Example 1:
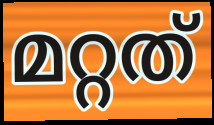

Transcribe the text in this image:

മറ്റത്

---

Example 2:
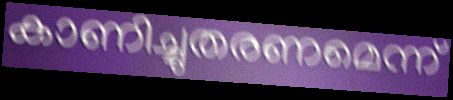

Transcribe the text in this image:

കാണിച്ചുതരണമെന്ന്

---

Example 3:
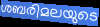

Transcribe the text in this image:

ശബരിമലയുടെ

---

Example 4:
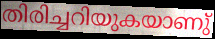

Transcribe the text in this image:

തിരിച്ചറിയുകയാണു്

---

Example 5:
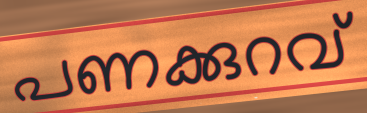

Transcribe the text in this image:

പണക്കുറവ്